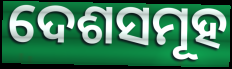
ଦେଶସମୂହ